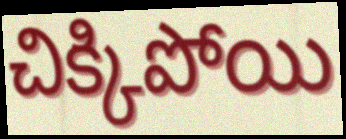
చిక్కిపోయి